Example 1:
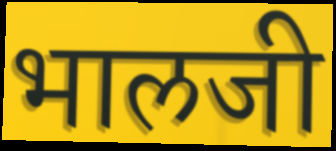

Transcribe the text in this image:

भालजी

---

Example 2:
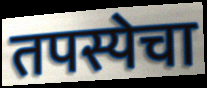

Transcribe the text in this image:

तपस्येचा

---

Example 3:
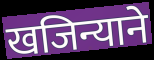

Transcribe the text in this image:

खजिन्याने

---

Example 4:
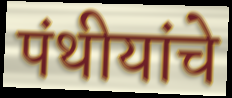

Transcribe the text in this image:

पंथीयांचे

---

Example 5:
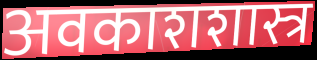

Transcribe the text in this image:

अवकाशशास्त्र